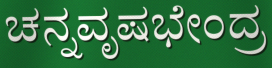
ಚನ್ನವೃಷಭೇಂದ್ರ